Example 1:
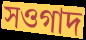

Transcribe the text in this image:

সওগাদ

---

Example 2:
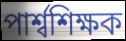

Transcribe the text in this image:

পার্শ্বশিক্ষক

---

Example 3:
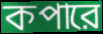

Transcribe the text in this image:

কপারে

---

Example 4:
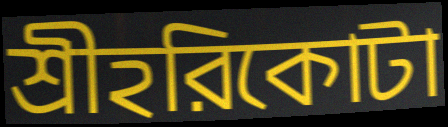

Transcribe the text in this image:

শ্রীহরিকোটা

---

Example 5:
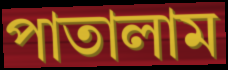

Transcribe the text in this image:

পাতালাম